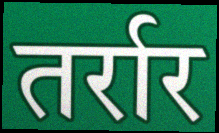
तर्रार